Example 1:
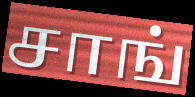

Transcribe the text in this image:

சாங்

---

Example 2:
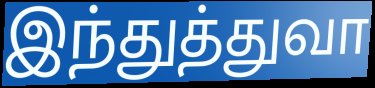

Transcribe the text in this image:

இந்துத்துவா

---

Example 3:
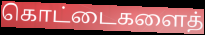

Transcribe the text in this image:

கொட்டைகளைத்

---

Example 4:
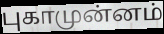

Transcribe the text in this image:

புகாமுன்னம்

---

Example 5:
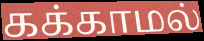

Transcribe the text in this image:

கக்காமல்